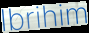
Ibrihim